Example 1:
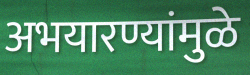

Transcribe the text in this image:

अभयारण्यांमुळे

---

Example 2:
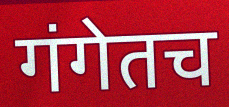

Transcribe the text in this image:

गंगेतच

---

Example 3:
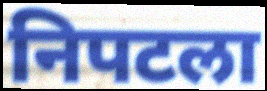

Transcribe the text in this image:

निपटला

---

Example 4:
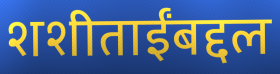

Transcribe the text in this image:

शशीताईंबद्दल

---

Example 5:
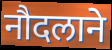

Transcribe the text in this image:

नौदलाने